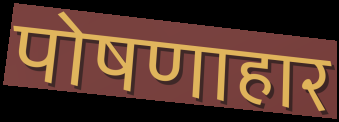
पोषणाहार